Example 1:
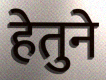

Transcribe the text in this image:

हेतुने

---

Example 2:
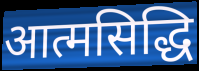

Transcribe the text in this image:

आत्मसिद्धि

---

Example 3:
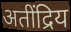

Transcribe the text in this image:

अतींद्रिय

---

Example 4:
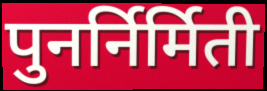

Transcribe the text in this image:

पुनर्निर्मिती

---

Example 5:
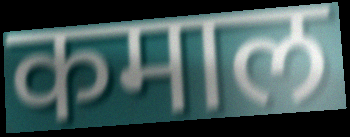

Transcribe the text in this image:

कमाल